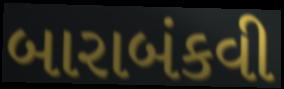
બારાબંકવી